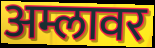
अम्लावर